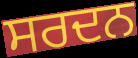
ਸਰਦਨ